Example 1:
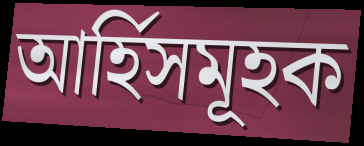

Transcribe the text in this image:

আৰ্হিসমূহক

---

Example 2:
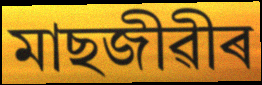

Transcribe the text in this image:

মাছজীৱীৰ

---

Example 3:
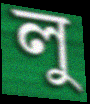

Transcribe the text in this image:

লু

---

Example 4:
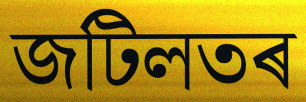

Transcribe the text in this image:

জটিলতৰ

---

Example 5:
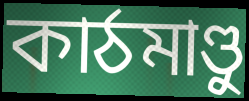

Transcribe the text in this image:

কাঠমাণ্ডু